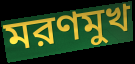
মরণমুখ